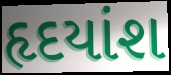
હૃદયાંશ